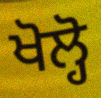
ਖੋਲ੍ਹੋ